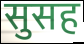
सुसह